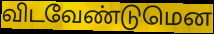
விடவேண்டுமென